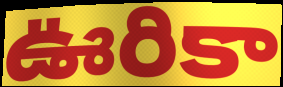
ఊరికా